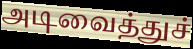
அடிவைத்துச்